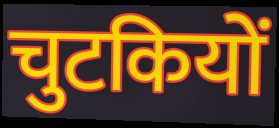
चुटकियों